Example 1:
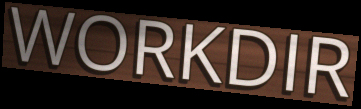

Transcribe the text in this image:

WORKDIR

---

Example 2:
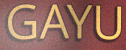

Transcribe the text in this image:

GAYU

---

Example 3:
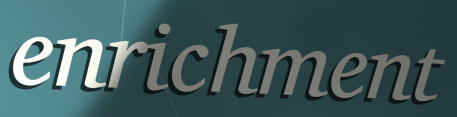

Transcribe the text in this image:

enrichment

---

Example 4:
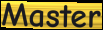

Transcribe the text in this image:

Master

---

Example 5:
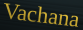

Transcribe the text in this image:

Vachana